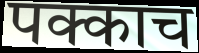
पक्काच